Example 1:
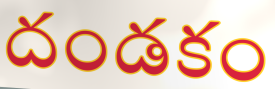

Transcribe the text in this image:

దండకం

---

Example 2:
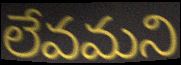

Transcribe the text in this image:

లేవమని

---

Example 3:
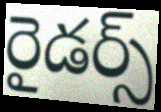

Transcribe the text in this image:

రైడర్స్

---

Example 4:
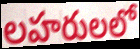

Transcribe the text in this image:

లహరులలో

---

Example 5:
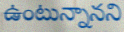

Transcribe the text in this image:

ఉంటున్నానని